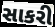
સાકરી